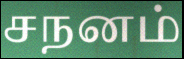
சநனம்